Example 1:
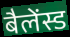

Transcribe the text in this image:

बैलेंस्ड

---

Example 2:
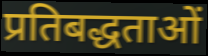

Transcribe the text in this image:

प्रतिबद्धताओं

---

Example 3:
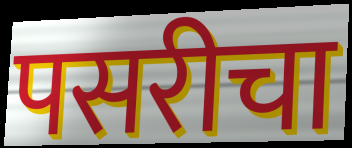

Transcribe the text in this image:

पसरीचा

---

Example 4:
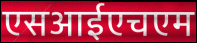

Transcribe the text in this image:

एसआईएचएम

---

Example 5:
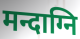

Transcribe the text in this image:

मन्दाग्नि